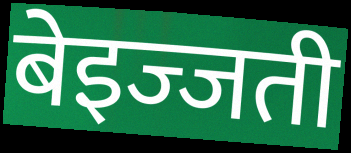
बेइज्‍जती